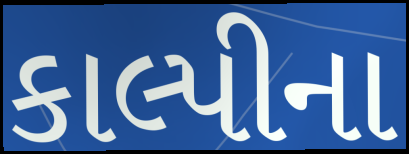
કાલ્પીના